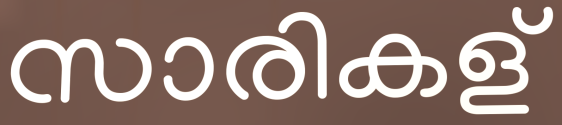
സാരികള്